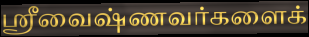
ஸ்ரீவைஷ்ணவர்களைக்